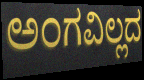
ಅಂಗವಿಲ್ಲದ